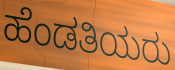
ಹೆಂಡತಿಯರು